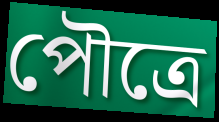
পৌত্রে